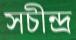
সচীন্দ্র